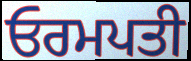
ਓਰਮਪਤੀ